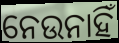
ନେଉନାହିଁ